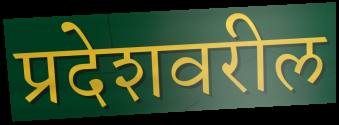
प्रदेशवरील